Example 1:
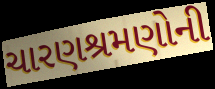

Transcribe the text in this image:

ચારણશ્રમણોની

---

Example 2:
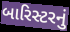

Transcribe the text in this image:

બારિસ્ટરનું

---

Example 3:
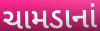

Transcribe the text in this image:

ચામડાનાં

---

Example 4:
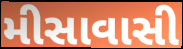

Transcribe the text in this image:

મીસાવાસી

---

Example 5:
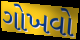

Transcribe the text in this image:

ગોખવો